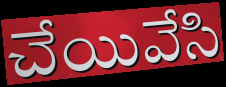
చేయివేసి